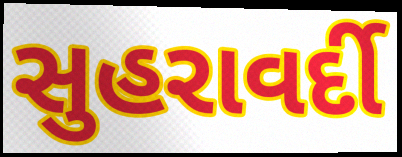
સુહરાવર્દી